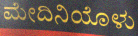
ಮೇದಿನಿಯೊಳು